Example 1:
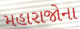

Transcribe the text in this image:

મહારાજોના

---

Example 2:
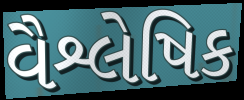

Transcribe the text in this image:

વૈશ્લેષિક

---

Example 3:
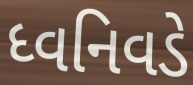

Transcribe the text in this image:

ધ્વનિવડે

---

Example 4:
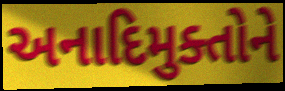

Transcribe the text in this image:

અનાદિમુક્તોને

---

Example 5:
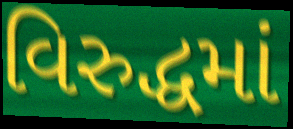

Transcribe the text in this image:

વિરુદ્ધમાં